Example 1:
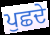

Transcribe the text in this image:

ਪੁਛਦੇ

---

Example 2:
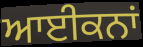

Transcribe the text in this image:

ਆਈਕਨਾਂ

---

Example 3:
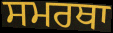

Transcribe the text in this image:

ਸਮਰਥਾ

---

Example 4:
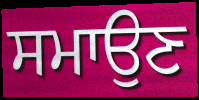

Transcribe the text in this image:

ਸਮਾਉਣ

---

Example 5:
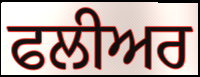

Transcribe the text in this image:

ਫਲੀਅਰ